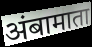
अंबामाता